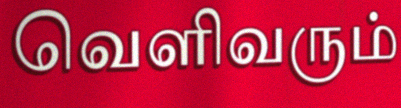
வெளிவரும்